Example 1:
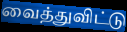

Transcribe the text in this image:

வைத்துவிட்டு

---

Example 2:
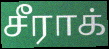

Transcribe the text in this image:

சீராக்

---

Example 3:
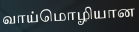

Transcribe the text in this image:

வாய்மொழியான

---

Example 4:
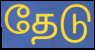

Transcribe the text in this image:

தேடு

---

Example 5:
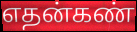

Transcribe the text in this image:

எதன்கண்